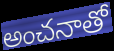
అంచనాతో